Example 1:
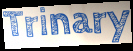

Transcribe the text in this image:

Trinary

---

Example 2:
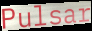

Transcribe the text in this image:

Pulsar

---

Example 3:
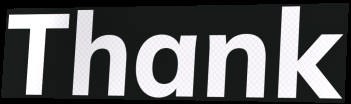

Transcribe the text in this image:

Thank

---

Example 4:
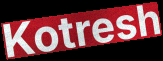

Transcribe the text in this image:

Kotresh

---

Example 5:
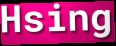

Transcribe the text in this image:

Hsing